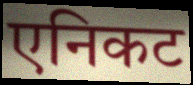
एनिकट